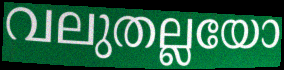
വലുതല്ലയോ